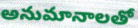
అనుమానాలతో